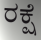
ರಕ್ಷೆ